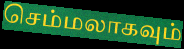
செம்மலாகவும்